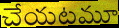
చేయటమూ